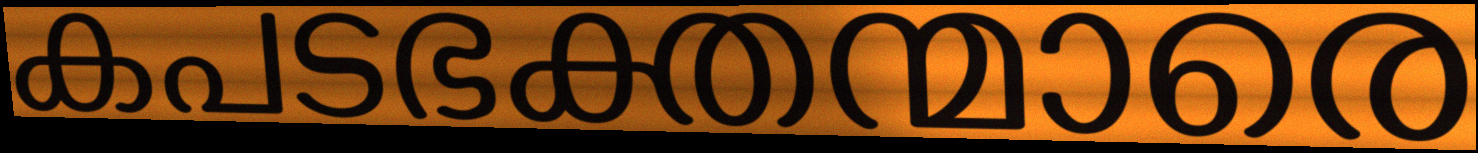
കപടഭക്തന്മാരെ